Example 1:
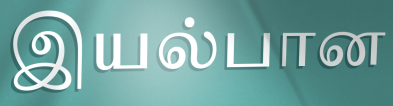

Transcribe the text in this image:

இயல்பான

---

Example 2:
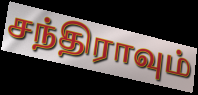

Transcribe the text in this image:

சந்திராவும்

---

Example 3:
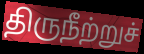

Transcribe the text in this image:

திருநீற்றுச்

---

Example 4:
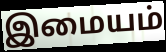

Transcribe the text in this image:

இமையம்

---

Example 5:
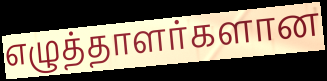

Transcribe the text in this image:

எழுத்தாளர்களான